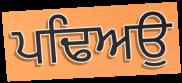
ਪਢਿਅਉ